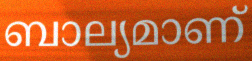
ബാല്യമാണ്